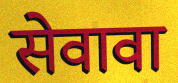
सेवावा